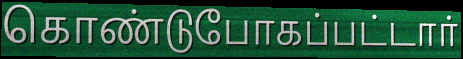
கொண்டுபோகப்பட்டார்